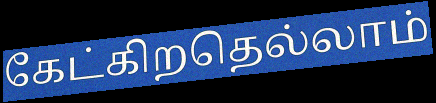
கேட்கிறதெல்லாம்